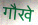
गौखे